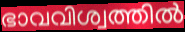
ഭാവവിശ്വത്തിൽ